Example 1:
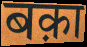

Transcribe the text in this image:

बक़ा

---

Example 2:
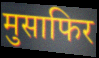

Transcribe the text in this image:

मुसाफिर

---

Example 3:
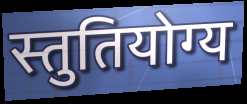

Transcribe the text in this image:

स्तुतियोग्य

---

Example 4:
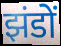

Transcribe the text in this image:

झंडों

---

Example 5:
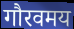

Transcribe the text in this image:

गौरवमय